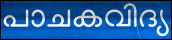
പാചകവിദ്യ